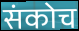
संकोच